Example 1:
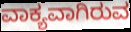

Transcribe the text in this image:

ವಾಕ್ಯವಾಗಿರುವ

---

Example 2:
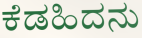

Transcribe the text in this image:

ಕೆಡಹಿದನು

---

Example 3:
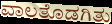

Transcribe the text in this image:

ವಾಲತೊಡಗಿತು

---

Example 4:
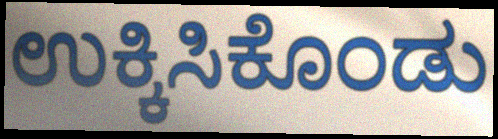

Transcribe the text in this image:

ಉಕ್ಕಿಸಿಕೊಂಡು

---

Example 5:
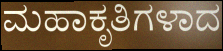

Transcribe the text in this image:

ಮಹಾಕೃತಿಗಳಾದ